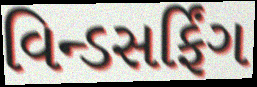
વિન્ડસર્ફિંગ